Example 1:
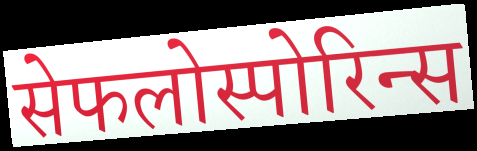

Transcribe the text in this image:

सेफलोस्पोरिन्स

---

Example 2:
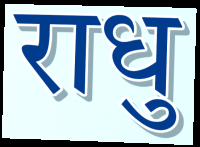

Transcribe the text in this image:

राधु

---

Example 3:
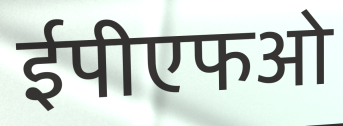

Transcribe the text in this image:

ईपीएफओ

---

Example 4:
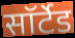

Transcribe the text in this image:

सॉर्टेड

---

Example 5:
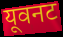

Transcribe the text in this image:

यूवनट